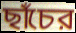
ছাঁচের